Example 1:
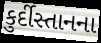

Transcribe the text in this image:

કુર્દીસ્તાનના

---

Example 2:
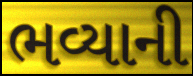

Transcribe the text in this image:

ભવ્યાની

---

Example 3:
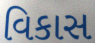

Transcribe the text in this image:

વિકાસ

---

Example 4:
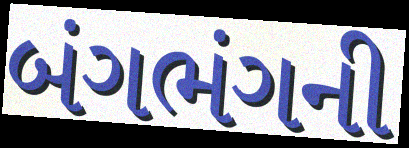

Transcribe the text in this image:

બંગભંગની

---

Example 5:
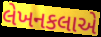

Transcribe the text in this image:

લેખનકલાએ